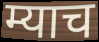
म्याच